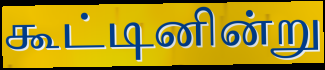
கூட்டினின்று